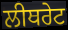
ਲੀਥਰੇਟ